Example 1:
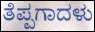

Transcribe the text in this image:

ತೆಪ್ಪಗಾದಳು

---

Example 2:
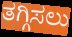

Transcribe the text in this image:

ತಗ್ಗಿಸಲು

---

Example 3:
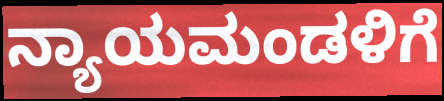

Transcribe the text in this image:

ನ್ಯಾಯಮಂಡಳಿಗೆ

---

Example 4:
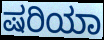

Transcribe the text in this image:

ಷರಿಯಾ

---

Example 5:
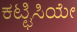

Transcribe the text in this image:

ಕಟ್ಟಿಸಿಯೇ